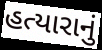
હત્યારાનું